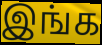
இங்க